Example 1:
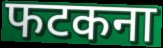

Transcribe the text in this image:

फटकना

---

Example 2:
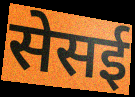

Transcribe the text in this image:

सेसई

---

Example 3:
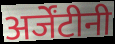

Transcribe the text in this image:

अर्जेंटीनी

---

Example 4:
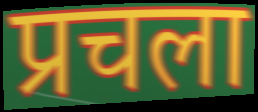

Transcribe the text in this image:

प्रचला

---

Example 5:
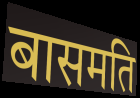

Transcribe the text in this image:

बासमति